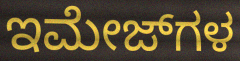
ಇಮೇಜ್‌ಗಳ